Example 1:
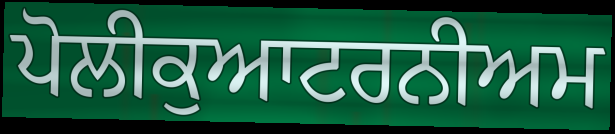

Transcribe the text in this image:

ਪੋਲੀਕੁਆਟਰਨੀਅਮ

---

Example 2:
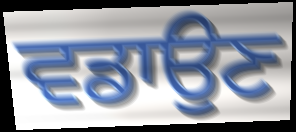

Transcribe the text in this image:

ਵਡਾਉਣ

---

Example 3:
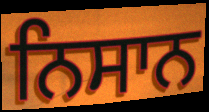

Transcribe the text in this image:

ਨਿਸਾਨ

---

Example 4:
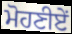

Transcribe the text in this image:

ਮੋਹਣੀਏਂ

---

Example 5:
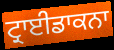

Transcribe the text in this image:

ਟ੍ਰਾਈਡਾਕਨਾ